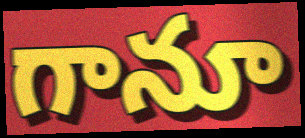
గానూ